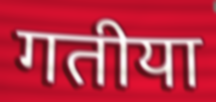
गतीया